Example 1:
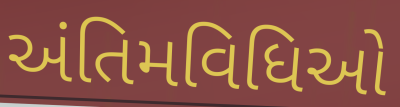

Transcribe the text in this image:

અંતિમવિધિઓ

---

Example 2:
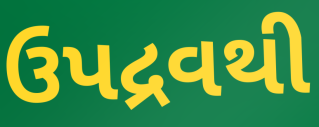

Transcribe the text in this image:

ઉપદ્રવથી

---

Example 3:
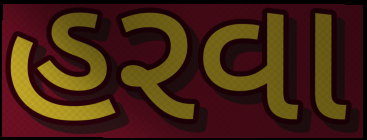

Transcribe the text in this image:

હરવા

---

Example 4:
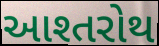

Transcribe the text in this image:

આશ્તરોથ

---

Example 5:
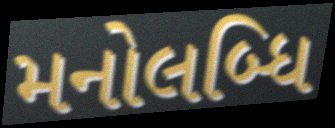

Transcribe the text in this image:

મનોલબ્ધિ